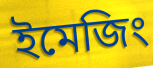
ইমেজিং